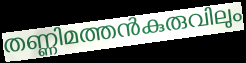
തണ്ണിമത്തൻകുരുവിലും